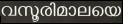
വസൂരിമാലയെ